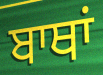
ਬਾਥਾਂ